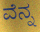
ವೆನ್ನ